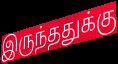
இருந்ததுக்கு